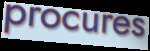
procures